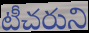
టీచరుని